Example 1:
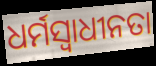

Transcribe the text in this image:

ଧର୍ମସ୍ୱାଧୀନତା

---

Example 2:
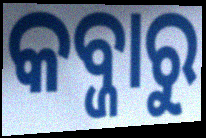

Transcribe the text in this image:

କବ୍ଜାରୁ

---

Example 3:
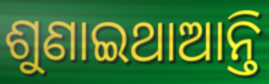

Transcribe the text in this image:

ଶୁଣାଇଥାଆନ୍ତି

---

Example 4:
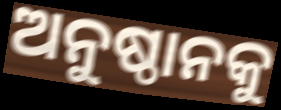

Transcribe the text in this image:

ଅନୁଷ୍ଠାନକୁ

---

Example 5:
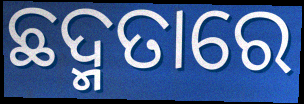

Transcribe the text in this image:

ଛଦ୍ମତାରେ